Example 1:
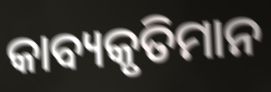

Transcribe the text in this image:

କାବ୍ୟକୃତିମାନ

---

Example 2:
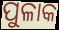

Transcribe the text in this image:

ପୁଳାକ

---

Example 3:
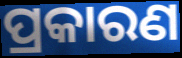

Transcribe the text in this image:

ପ୍ରକାରଣ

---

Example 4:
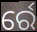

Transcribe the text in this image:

ର୍ରେ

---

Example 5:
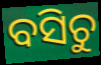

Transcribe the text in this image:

ବସିଚୁ